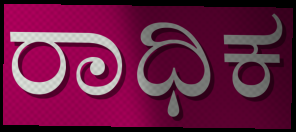
ರಾಧಿಕ